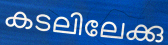
കടലിലേക്കു